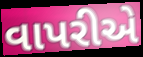
વાપરીએ